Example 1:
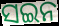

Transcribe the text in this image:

ସଇନ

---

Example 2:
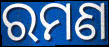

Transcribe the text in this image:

ରମଣ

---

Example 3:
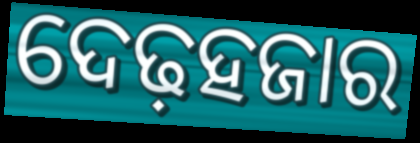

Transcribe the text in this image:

ଦେଢ଼ହଜାର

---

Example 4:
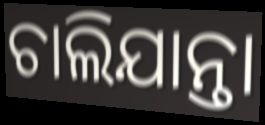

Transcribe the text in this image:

ଚାଲିଯାନ୍ତା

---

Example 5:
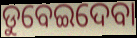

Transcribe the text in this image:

ଡୁବେଇଦେବା